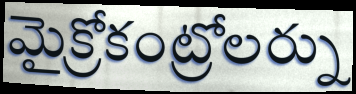
మైక్రోకంట్రోలర్ను